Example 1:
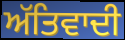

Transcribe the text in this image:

ਅੱਤਿਵਾਦੀ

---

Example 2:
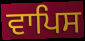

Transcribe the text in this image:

ਵਾਪਿਸ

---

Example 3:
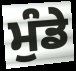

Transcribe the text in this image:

ਮੁੰਡੇ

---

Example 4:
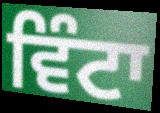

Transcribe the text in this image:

ਵਿੰਟਾ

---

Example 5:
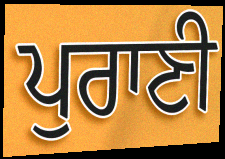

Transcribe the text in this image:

ਪੁਰਾਣੀ